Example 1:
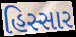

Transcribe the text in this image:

હિસ્સાર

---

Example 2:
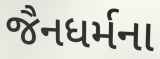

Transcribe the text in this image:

જૈનધર્મના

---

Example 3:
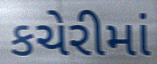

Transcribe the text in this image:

કચેરીમાં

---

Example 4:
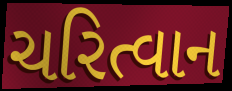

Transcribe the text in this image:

ચરિત્વાન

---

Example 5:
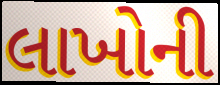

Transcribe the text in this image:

લાખોની